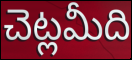
చెట్లమీది